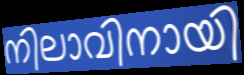
നിലാവിനായി